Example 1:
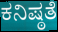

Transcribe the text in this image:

ಕನಿಷ್ಠತೆ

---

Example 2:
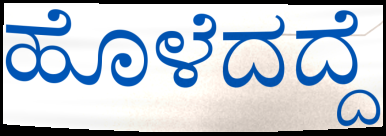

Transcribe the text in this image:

ಹೊಳೆದದ್ದೆ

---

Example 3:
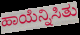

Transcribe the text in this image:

ಹಾಯೆನ್ನಿಸಿತು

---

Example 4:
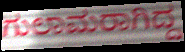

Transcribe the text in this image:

ಗುಲಾಮರಾಗಿದ್ದ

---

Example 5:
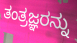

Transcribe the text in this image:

ತಂತ್ರಜ್ಞರನ್ನು